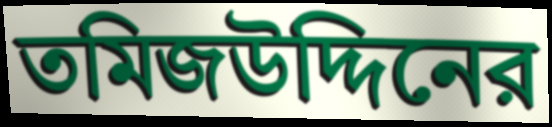
তমিজউদ্দিনের